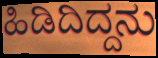
ಹಿಡಿದಿದ್ದನು